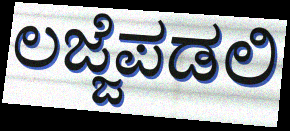
ಲಜ್ಜೆಪಡಲಿ